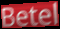
Betel